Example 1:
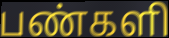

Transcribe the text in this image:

பண்களி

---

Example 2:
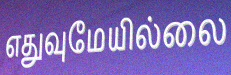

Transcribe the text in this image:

எதுவுமேயில்லை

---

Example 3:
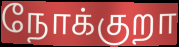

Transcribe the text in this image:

நோக்குறா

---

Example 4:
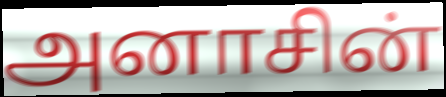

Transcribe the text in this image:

அனாசின்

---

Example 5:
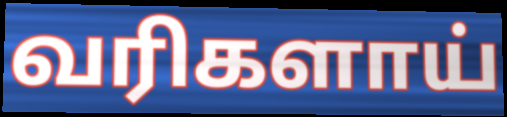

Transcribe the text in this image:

வரிகளாய்